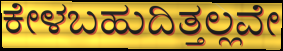
ಕೇಳಬಹುದಿತ್ತಲ್ಲವೇ